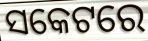
ସକେଟରେ